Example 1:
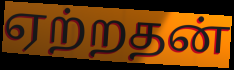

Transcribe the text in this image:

ஏற்றதன்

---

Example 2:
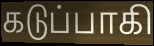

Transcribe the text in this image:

கடுப்பாகி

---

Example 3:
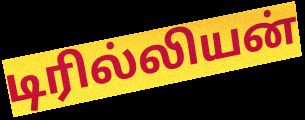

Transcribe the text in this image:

டிரில்லியன்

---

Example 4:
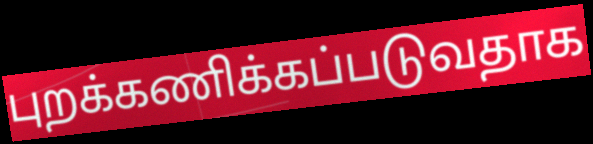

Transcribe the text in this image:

புறக்கணிக்கப்படுவதாக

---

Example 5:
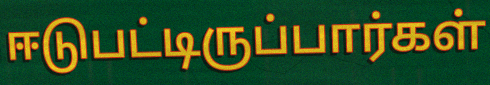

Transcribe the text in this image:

ஈடுபட்டிருப்பார்கள்